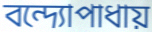
বন্দ্যোপাধায়